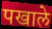
पखाले